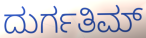
ದುರ್ಗತಿಮ್